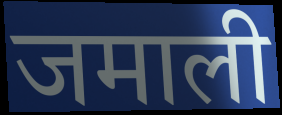
जमाली